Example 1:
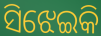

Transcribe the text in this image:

ସିଝେଇକି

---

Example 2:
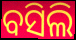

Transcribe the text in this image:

ବସିଲି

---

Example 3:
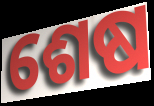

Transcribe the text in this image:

ଶେଷ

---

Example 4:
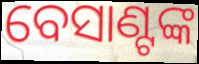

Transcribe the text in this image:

ବେସାଣ୍ଟଙ୍କ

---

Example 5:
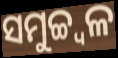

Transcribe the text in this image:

ସମୁଚ୍ଚ୍ୱଳ